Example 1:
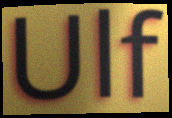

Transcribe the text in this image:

Ulf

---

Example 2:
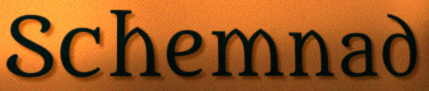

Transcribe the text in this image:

Schemnad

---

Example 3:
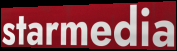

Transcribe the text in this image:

starmedia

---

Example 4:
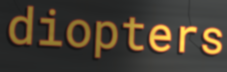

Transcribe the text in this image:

diopters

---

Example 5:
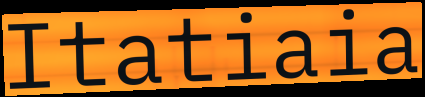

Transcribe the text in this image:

Itatiaia